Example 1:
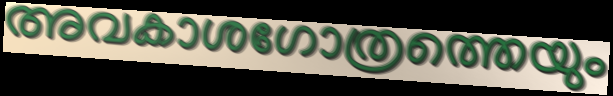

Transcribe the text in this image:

അവകാശഗോത്രത്തെയും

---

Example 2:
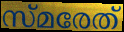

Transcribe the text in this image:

സ്മരേത്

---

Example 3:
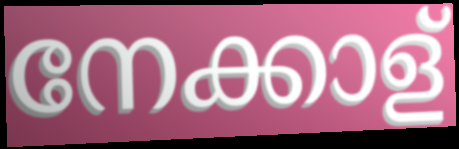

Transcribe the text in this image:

നേക്കാള്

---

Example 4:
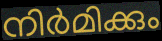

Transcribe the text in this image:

നിർമിക്കും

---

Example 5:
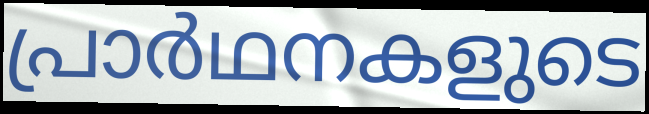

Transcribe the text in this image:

പ്രാർഥനകളുടെ